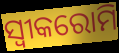
ସ୍ଵୀକରୋମି